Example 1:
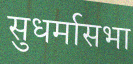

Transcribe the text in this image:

सुधर्मासभा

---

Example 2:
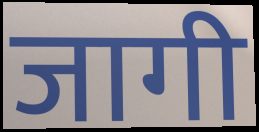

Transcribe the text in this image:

जागी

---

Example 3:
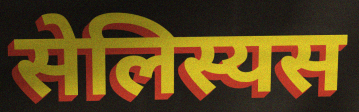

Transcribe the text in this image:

सेलिस्यस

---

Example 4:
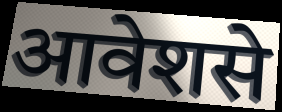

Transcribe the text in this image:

आवेशसे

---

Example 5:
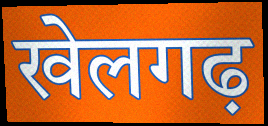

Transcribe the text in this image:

खेलगढ़